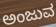
ಅಂಜುವ